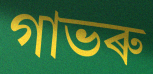
গাভৰু